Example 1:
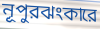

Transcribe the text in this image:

নূপুরঝংকারে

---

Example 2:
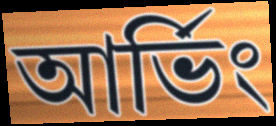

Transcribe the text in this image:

আর্ভিং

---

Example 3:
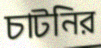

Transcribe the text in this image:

চাটনির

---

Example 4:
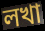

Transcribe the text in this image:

লখা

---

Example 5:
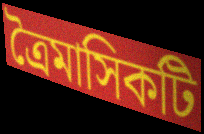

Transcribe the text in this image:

ত্রৈমাসিকটি